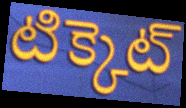
టిక్కెట్